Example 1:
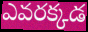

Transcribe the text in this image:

ఎవరక్కడ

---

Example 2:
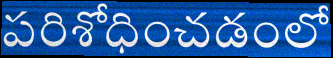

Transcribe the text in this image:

పరిశోధించడంలో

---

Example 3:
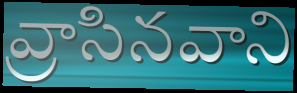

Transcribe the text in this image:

వ్రాసినవాని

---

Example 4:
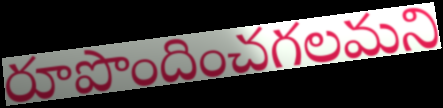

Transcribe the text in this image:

రూపొందించగలమని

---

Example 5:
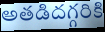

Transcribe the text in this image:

అతడిదగ్గరికి